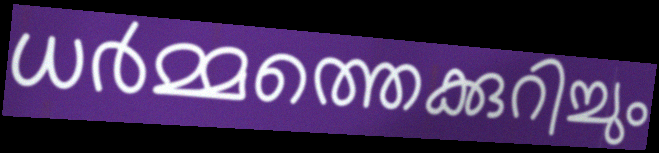
ധർമ്മത്തെക്കുറിച്ചും